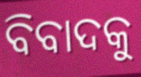
ବିବାଦକୁ